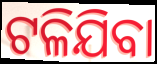
ଟଳିଯିବା